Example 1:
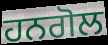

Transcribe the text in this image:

ਹਨਗੋਲ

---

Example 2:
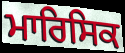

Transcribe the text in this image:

ਮਾਰਿਸਿਕ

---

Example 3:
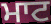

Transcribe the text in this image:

ਮਾਟ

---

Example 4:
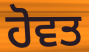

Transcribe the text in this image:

ਹੋਵਤ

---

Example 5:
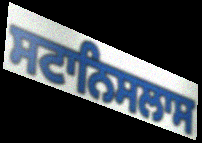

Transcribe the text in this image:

ਸਟਾਨਿਸਲਾਸ